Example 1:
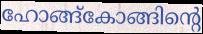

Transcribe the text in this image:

ഹോങ്ങ്കോങ്ങിന്റെ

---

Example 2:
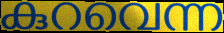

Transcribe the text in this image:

കുറവെന്ന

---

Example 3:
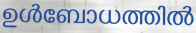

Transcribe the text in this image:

ഉൾബോധത്തിൽ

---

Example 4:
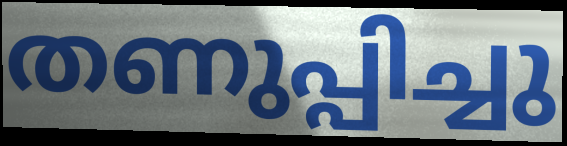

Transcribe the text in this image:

തണുപ്പിച്ചു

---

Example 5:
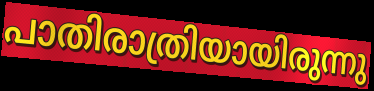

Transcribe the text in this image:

പാതിരാത്രിയായിരുന്നു